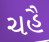
ચહૈ